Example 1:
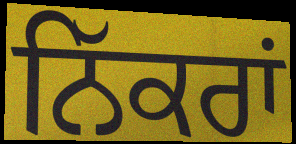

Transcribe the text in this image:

ਨਿੱਕਰਾਂ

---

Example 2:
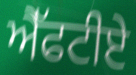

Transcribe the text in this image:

ਐੱਫਟੀਏ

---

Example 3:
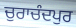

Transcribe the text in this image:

ਚੁਰਾਚੰਦਪੁਰ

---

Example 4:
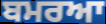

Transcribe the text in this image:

ਬਮਰਆ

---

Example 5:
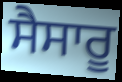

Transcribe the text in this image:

ਸੈਸਾਰੂ